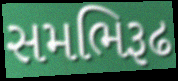
સમભિરૂઢ